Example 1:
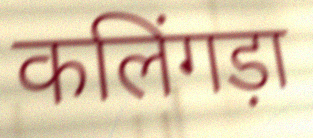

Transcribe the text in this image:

कलिंगड़ा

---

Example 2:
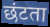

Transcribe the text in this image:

छंटता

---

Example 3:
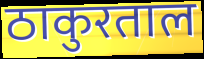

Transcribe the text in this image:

ठाकुरताल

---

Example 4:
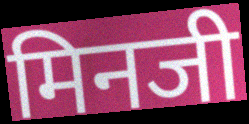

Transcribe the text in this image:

मिनजी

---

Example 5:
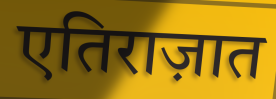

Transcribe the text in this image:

एतिराज़ात